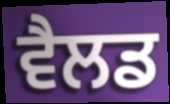
ਵੈਲਡ